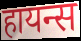
हायन्स